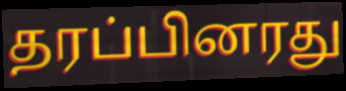
தரப்பினரது